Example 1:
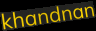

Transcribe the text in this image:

khandnan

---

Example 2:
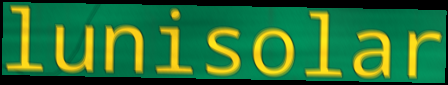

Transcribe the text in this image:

lunisolar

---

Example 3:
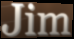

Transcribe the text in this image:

Jim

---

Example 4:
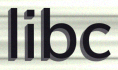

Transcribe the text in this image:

libc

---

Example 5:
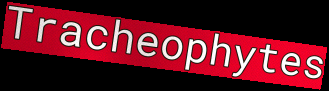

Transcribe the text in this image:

Tracheophytes